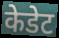
केडेट